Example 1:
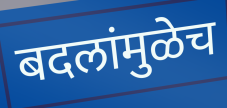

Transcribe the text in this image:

बदलांमुळेच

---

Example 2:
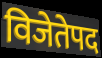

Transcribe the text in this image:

विजेतेपद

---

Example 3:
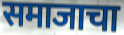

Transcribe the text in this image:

समाजाचा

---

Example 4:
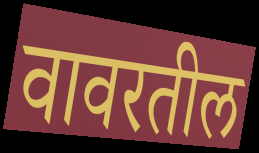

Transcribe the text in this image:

वावरतील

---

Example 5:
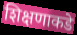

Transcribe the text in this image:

शिक्षणाकडे